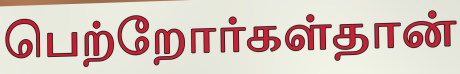
பெற்றோர்கள்தான்